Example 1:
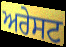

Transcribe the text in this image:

ਅਰੇਸਟ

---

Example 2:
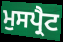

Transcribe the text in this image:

ਮੁਸਪ੍ਰੈਟ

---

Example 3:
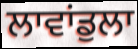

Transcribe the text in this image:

ਲਾਵਾਂਡੁਲਾ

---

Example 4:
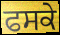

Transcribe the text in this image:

ਫਸਕੇ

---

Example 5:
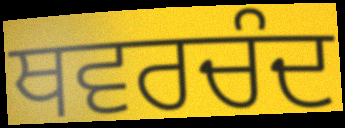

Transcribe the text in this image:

ਥਵਰਚੰਦ